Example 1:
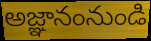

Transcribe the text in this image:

అజ్ఞానంనుండి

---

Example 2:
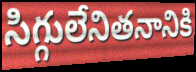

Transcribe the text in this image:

సిగ్గులేనితనానికి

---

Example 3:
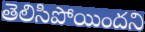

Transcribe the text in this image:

తెలిసిపోయిందని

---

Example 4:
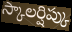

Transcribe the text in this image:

స్కాలర్షిప్కు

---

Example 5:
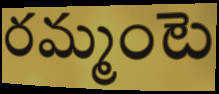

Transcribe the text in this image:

రమ్మంటె